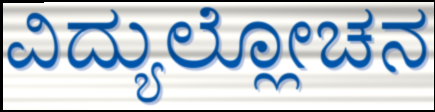
ವಿದ್ಯುಲ್ಲೋಚನ